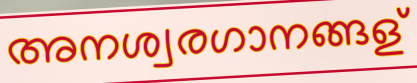
അനശ്വരഗാനങ്ങള്